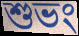
শুভং